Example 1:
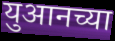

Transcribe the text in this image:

युआनच्या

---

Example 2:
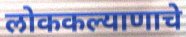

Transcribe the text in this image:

लोककल्याणाचे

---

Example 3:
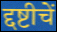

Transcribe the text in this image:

द्दष्टीचें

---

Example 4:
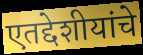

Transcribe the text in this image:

एतद्देशीयांचे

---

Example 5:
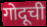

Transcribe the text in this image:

गोदूची